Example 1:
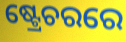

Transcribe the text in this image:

ଷ୍ଟ୍ରେଚରରେ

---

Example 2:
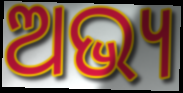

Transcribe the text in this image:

ଅଭ୍ୟ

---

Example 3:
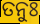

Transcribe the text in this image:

ତନୁଃ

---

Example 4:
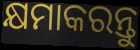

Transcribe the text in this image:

କ୍ଷମାକରନ୍ତୁ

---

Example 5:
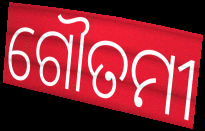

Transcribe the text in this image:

ଗୌତମୀ